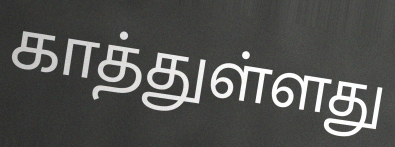
காத்துள்ளது